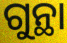
ଗୁନ୍ଥା